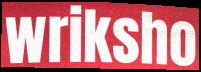
wriksho